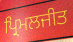
ਪ੍ਰਿਮਲਜੀਤ